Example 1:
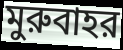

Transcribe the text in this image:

মুরুবাহর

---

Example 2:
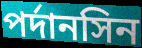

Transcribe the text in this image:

পর্দানসিন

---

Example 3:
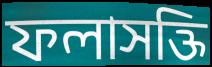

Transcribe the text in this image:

ফলাসক্তি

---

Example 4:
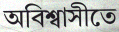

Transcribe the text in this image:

অবিশ্বাসীতে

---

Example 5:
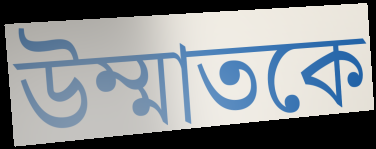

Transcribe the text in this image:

উম্মাতকে